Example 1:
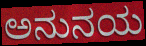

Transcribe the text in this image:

ಅನುನಯ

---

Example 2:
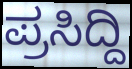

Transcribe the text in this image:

ಪ್ರಸಿದ್ದಿ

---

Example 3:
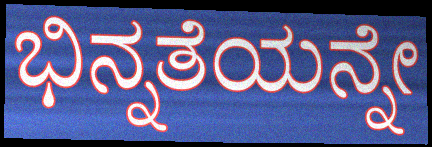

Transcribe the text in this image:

ಭಿನ್ನತೆಯನ್ನೇ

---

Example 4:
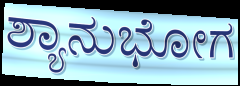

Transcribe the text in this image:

ಶ್ಯಾನುಭೋಗ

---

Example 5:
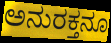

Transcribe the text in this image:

ಅನುರಕ್ತನೂ